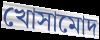
খোসামোদ